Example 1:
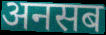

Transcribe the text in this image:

अनसब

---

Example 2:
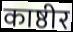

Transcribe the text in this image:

काष्ठीर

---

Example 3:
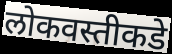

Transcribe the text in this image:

लोकवस्तीकडे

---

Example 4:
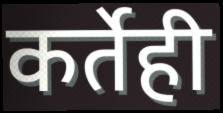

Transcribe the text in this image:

कर्तेही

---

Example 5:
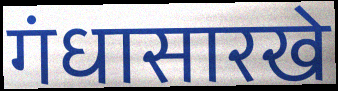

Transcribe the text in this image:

गंधासारखे